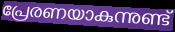
പ്രേരണയാകുന്നുണ്ട്